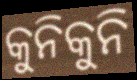
କୁନିକୁନି